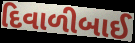
દિવાળીબાઈ